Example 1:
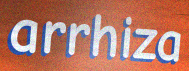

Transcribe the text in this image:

arrhiza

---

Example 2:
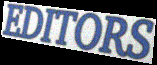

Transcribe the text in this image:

EDITORS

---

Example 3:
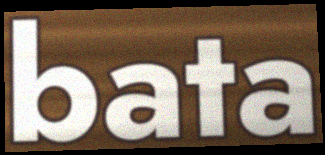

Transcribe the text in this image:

bata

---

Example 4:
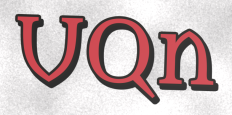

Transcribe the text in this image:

UQn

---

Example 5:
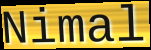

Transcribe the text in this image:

Nimal